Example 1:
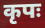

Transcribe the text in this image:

कृपः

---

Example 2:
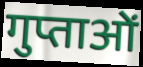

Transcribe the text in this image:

गुप्ताओं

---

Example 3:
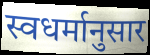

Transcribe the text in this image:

स्वधर्मानुसार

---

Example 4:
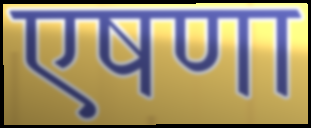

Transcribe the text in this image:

एषणा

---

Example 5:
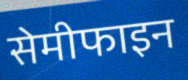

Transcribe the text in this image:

सेमीफाइन